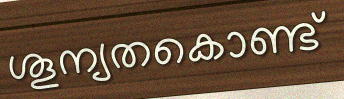
ശൂന്യതകൊണ്ട്